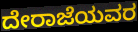
ದೇರಾಜೆಯವರ